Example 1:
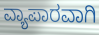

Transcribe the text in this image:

ವ್ಯಾಪಾರವಾಗಿ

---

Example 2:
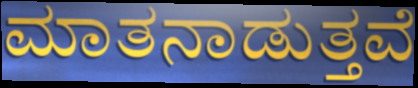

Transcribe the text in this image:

ಮಾತನಾಡುತ್ತವೆ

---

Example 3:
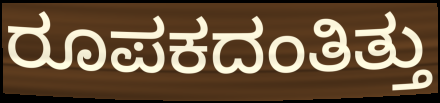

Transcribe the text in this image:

ರೂಪಕದಂತಿತ್ತು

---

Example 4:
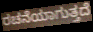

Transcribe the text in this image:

ರಚನೆಯಾಗುತ್ತದೆ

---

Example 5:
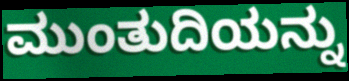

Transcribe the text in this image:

ಮುಂತುದಿಯನ್ನು